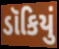
ડૉકિયું